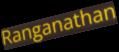
Ranganathan